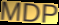
MDP